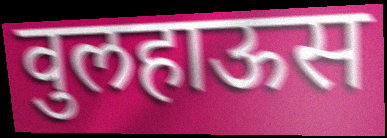
वुलहाऊस